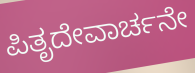
ಪಿತೃದೇವಾರ್ಚನೇ